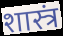
शास्त्रं